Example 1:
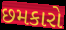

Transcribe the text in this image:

છમકારો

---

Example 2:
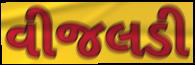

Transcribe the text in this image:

વીજલડી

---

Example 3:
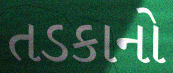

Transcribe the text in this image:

તડકાનો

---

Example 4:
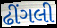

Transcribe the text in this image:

ઢીંગલી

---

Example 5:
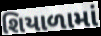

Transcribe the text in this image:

શિયાળામાં